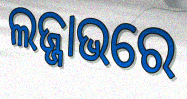
ଲଜ୍ଜାଭରେ